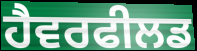
ਹੈਵਰਫੀਲਡ